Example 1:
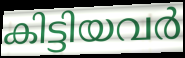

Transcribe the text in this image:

കിട്ടിയവർ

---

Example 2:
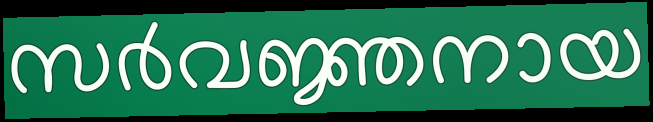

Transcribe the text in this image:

സർവജ്ഞനായ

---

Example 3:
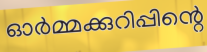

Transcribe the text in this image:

ഓർമ്മക്കുറിപ്പിന്റെ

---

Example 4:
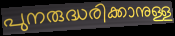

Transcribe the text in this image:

പുനരുദ്ധരിക്കാനുള്ള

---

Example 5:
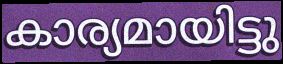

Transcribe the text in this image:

കാര്യമായിട്ടു